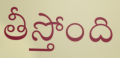
తీస్తోంది